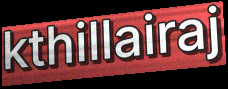
kthillairaj